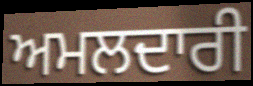
ਅਮਲਦਾਰੀ